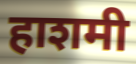
हाशमी